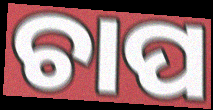
ଚାପ